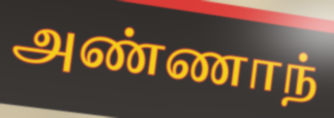
அண்ணாந்